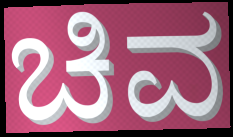
ಚಿವ